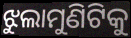
ଝୁଲାମୁଣିଟିକୁ